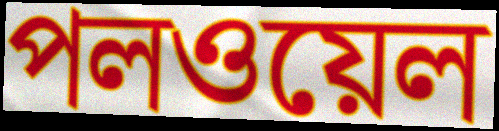
পলওয়েল